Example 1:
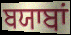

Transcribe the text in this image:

ਬਯਾਬਾਂ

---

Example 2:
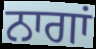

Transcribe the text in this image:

ਨਾਗਾਂ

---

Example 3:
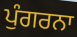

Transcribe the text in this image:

ਪੁੰਗਰਨਾ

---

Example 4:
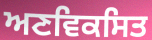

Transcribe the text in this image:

ਅਣਵਿਕਸਿਤ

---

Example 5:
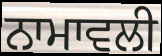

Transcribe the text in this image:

ਨਾਮਾਵਲੀ